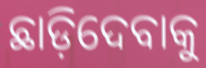
ଛାଡ଼ିଦେବାକୁ